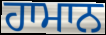
ਹਾਮਾਨ